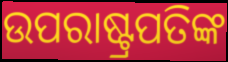
ଉପରାଷ୍ଟ୍ରପତିଙ୍କ